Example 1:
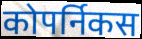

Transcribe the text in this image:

कोपर्निकस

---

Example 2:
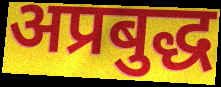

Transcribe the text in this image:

अप्रबुद्ध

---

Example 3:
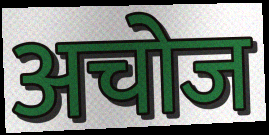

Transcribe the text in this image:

अचोज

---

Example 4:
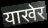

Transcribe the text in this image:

याखेर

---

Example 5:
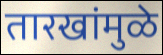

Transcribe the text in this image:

तारखांमुळे